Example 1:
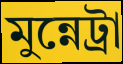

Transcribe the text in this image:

মুন্নেট্ৰা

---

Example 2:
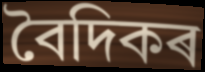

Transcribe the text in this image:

বৈদিকৰ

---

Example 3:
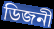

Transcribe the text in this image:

ডিজনী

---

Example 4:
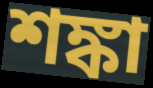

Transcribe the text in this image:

শঙ্কা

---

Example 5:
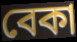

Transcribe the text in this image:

বেকা